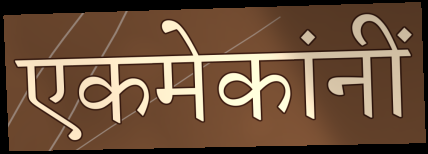
एकमेकांनीं